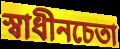
স্বাধীনচেতা